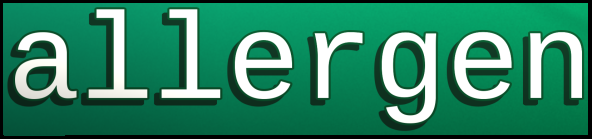
allergen